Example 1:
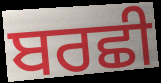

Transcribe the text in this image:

ਬਰਛੀ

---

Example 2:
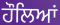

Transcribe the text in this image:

ਹੌਲਿਆਂ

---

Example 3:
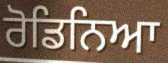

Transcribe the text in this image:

ਰੋਡਿਨਿਆ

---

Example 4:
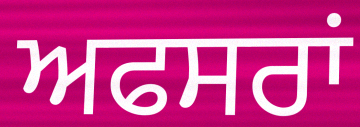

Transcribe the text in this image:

ਅਫਸਰਾਂ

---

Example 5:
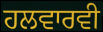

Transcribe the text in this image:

ਹਲਵਾਰਵੀ